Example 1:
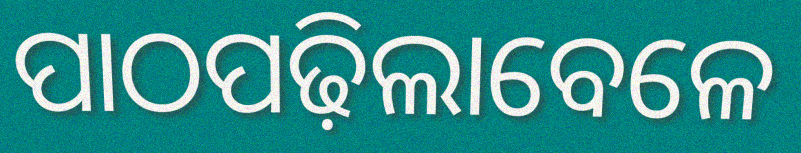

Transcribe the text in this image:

ପାଠପଢ଼ିଲାବେଳେ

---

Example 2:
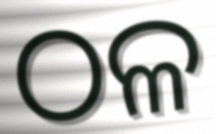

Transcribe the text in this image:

ଠଳ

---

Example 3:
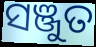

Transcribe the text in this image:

ସଞ୍ଜୁତ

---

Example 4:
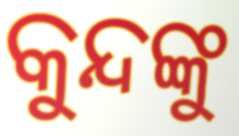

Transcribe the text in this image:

କୁନ୍ଦଙ୍କୁ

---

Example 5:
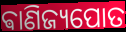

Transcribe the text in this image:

ଵାଣିଜ୍ୟପୋତ